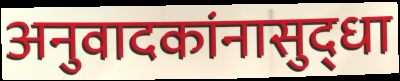
अनुवादकांनासुद्धा